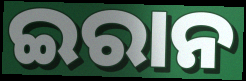
ଇରାନ